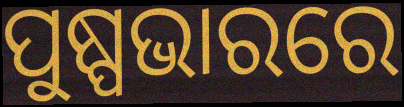
ପୁଷ୍ପଭାରରେ